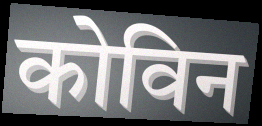
कोविन